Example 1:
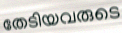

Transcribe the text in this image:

തേടിയവരുടെ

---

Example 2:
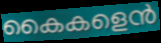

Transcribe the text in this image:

കൈകളെൻ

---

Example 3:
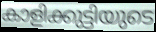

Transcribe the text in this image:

കാളിക്കുട്ടിയുടെ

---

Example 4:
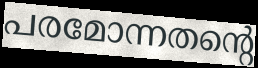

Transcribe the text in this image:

പരമോന്നതന്റെ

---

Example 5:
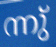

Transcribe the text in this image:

ന്നു്